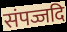
संपज्जदि